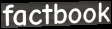
factbook